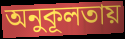
অনুকূলতায়